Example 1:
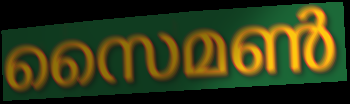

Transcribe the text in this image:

സൈമൺ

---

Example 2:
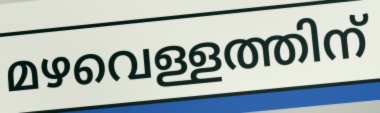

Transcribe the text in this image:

മഴവെള്ളത്തിന്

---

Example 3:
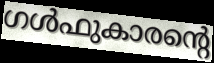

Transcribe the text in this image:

ഗൾഫുകാരന്റെ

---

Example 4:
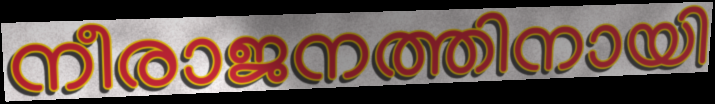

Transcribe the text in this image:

നീരാജനത്തിനായി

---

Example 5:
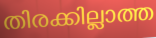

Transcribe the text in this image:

തിരക്കില്ലാത്ത